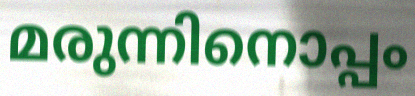
മരുന്നിനൊപ്പം